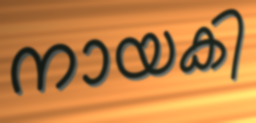
നായകി